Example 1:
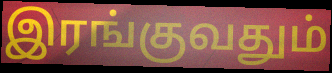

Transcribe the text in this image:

இரங்குவதும்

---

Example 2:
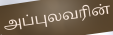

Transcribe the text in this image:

அப்புலவரின்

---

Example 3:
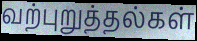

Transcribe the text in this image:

வற்புறுத்தல்கள்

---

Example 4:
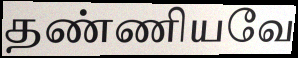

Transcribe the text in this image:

தண்ணியவே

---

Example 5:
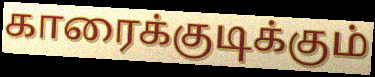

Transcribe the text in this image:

காரைக்குடிக்கும்